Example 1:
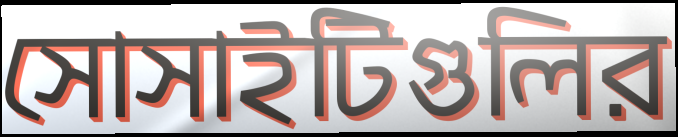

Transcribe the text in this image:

সোসাইটিগুলির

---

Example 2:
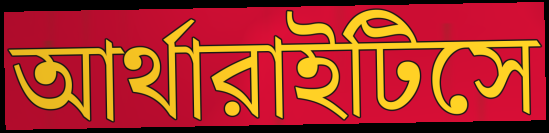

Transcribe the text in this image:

আর্থারাইটিসে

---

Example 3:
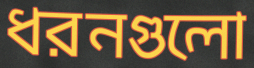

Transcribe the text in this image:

ধরনগুলো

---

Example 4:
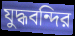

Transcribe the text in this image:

যুদ্ধবন্দির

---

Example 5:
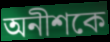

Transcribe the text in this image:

অনীশকে